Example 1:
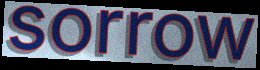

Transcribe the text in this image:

sorrow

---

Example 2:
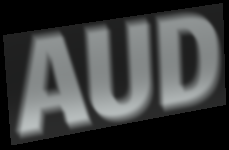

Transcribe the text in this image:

AUD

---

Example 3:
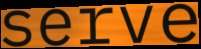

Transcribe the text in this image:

serve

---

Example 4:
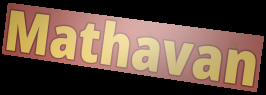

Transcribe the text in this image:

Mathavan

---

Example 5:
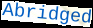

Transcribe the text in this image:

Abridged